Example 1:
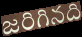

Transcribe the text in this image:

జరిగినది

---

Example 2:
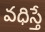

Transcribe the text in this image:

వధిస్తే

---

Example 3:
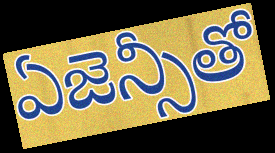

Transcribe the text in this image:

ఏజెన్సీతో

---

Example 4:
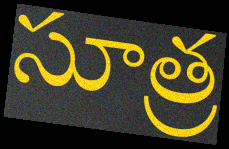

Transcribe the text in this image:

సూత్ర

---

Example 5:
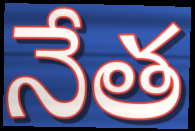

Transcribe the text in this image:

నేత